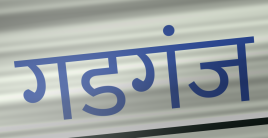
गडगंज